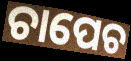
ଚାପେଚ